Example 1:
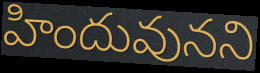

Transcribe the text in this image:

హిందువునని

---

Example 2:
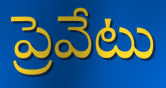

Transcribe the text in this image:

ప్రెవేటు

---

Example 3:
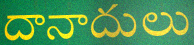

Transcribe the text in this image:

దానాదులు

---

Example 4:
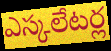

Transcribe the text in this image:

ఎస్కలేటర్ల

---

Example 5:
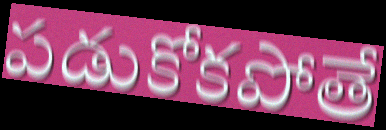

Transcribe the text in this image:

పడుకోకపోతే